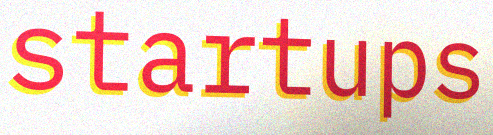
startups